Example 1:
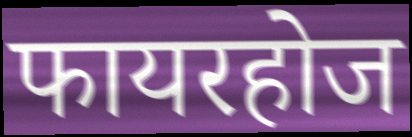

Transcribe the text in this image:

फायरहोज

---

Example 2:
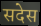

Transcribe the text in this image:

सदेस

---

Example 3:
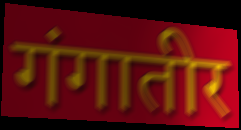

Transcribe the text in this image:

गंगातीर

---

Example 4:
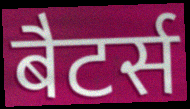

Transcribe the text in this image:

बैटर्स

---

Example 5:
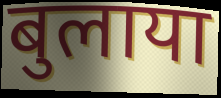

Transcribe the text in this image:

बुलाया